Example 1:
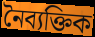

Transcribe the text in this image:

নৈব্যক্তিক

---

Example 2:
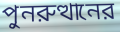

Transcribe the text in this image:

পুনরুত্থানের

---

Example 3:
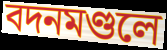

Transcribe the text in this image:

বদনমণ্ডলে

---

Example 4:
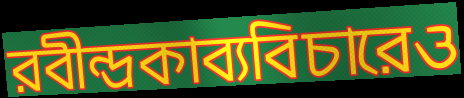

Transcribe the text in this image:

রবীন্দ্রকাব্যবিচারেও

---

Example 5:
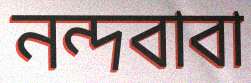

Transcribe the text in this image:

নন্দবাবা